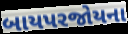
બાયપરજોયના